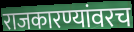
राजकारण्यांवरच